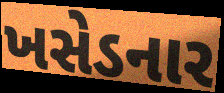
ખસેડનાર